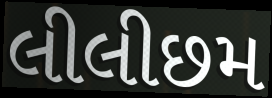
લીલીછમ